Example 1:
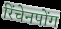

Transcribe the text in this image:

रिंचेनपोंग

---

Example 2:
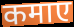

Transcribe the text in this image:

कमाए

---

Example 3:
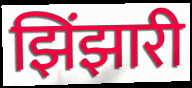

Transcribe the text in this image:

झिंझारी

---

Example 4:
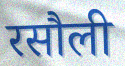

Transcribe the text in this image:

रसौली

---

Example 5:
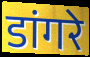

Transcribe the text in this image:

डांगरे